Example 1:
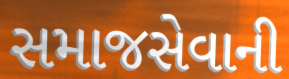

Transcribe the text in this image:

સમાજસેવાની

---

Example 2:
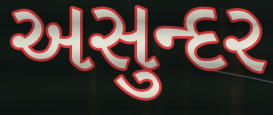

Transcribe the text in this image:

અસુન્દર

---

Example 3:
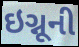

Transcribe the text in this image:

ઇગ્નૂની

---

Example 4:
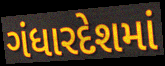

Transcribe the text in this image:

ગંધારદેશમાં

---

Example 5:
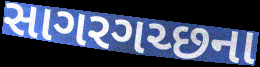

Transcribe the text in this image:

સાગરગચ્છના